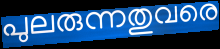
പുലരുന്നതുവരെ